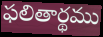
ఫలితార్థము